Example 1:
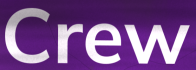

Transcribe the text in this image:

Crew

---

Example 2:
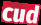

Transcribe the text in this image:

cud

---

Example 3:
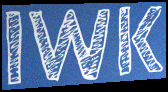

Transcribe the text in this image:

IWK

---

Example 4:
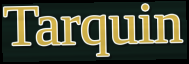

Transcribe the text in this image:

Tarquin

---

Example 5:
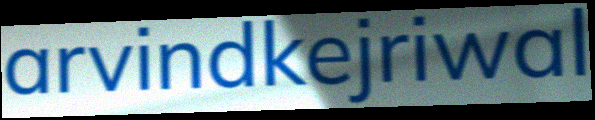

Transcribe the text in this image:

arvindkejriwal